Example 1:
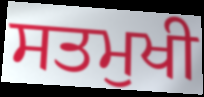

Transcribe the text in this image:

ਸਤਮੁਖੀ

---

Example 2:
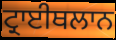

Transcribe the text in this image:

ਟ੍ਰਾਈਥਲਾਨ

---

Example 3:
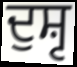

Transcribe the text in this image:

ਦੁਸ਼੍ਟ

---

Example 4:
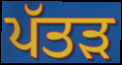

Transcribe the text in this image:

ਪੱਤਡ਼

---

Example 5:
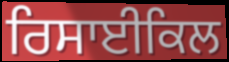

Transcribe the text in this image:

ਰਿਸਾਈਕਿਲ